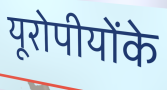
यूरोपीयोंके